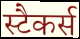
स्टैकर्स